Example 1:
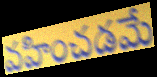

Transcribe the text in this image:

వహించడమే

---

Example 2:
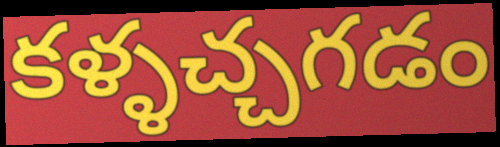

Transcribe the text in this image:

కళ్ళచ్చగడం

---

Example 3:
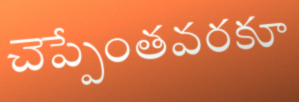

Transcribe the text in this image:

చెప్పేంతవరకూ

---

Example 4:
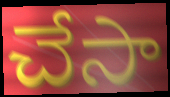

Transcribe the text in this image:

చేసా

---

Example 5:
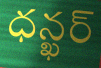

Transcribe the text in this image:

ధన్ఖర్